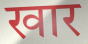
खार